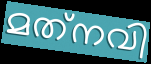
മത്‌നവി